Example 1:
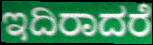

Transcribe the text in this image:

ಇದಿರಾದರೆ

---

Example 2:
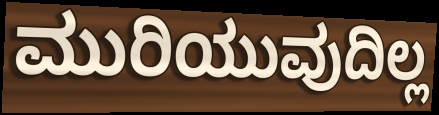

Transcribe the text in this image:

ಮುರಿಯುವುದಿಲ್ಲ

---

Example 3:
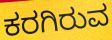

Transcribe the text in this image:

ಕರಗಿರುವ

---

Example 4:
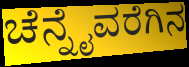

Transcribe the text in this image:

ಚೆನ್ನೈವರೆಗಿನ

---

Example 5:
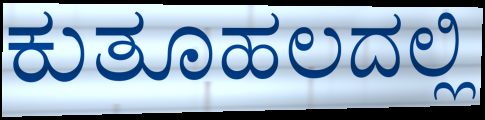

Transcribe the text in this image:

ಕುತೂಹಲದಲ್ಲಿ